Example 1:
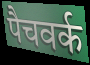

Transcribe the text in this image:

पैचवर्क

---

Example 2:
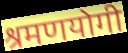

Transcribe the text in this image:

श्रमणयोगी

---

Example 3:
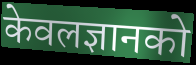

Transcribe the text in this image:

केवलज्ञानको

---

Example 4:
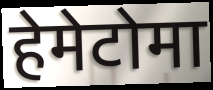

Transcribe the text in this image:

हेमेटोमा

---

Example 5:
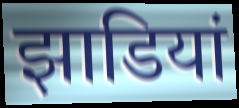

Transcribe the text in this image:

झाडियां